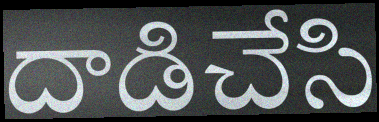
దాడిచేసి